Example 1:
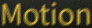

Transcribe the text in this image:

Motion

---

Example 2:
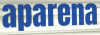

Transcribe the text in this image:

aparena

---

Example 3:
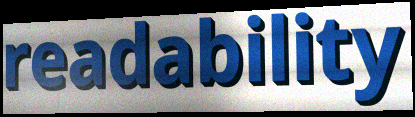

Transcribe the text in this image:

readability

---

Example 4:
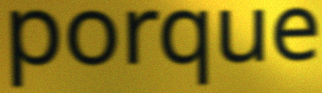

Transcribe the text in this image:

porque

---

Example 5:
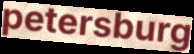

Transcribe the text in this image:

petersburg